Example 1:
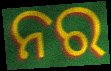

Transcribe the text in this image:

ନର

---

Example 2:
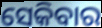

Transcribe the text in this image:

ସେକିବାର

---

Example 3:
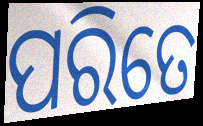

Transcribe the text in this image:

ପରିତେ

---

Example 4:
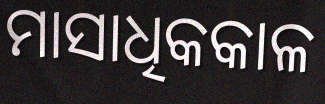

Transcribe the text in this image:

ମାସାଧିକକାଳ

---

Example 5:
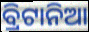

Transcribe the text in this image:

ବ୍ରିଟାନିଆ